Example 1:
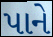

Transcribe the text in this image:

પાને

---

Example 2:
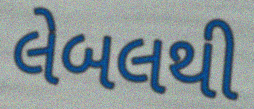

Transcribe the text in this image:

લેબલથી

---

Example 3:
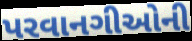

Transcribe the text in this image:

પરવાનગીઓની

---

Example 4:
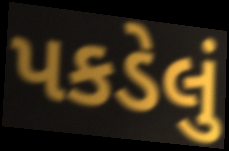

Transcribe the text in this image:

પકડેલું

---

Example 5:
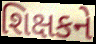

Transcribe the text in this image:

શિક્ષકને